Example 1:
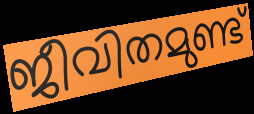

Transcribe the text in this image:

ജീവിതമുണ്ട്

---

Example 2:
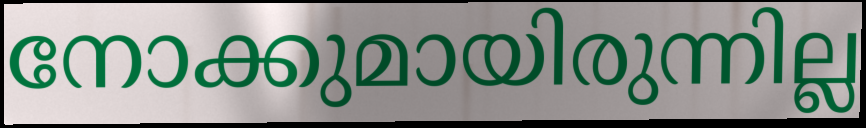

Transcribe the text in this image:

നോക്കുമായിരുന്നില്ല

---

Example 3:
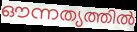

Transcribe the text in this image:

ഔന്നത്യത്തിൽ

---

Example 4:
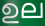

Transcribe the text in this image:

ഉല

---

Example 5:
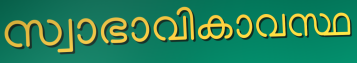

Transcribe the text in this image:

സ്വാഭാവികാവസ്ഥ